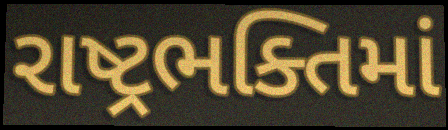
રાષ્ટ્રભક્તિમાં